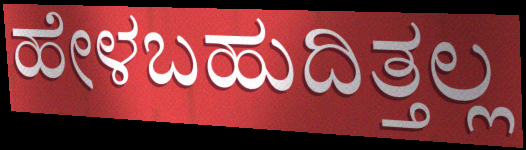
ಹೇಳಬಹುದಿತ್ತಲ್ಲ